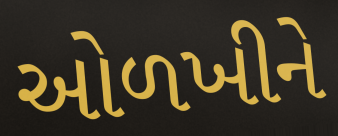
ઓળખીને